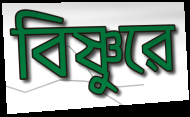
বিষ্ণুৱে